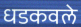
धडकवले